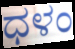
ಧಳಂ